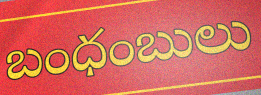
బంధంబులు